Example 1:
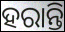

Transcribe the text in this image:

ହରାନ୍ତି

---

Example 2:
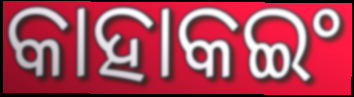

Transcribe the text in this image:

କାହାକଇଂ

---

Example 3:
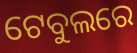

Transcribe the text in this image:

ଟେବୁଲରେ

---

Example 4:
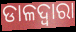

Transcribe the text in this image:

ଡାଳଦ୍ୱାରା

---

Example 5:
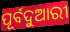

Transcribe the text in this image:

ପୂର୍ବଦୁଆରୀ